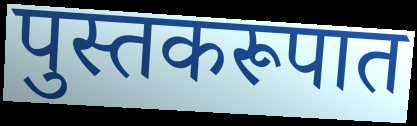
पुस्तकरूपात